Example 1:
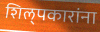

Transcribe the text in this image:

शिल्पकारांना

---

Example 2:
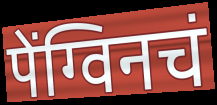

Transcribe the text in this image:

पेंग्विनचं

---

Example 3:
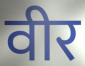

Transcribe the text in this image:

वीर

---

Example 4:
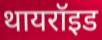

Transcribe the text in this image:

थायरॉइड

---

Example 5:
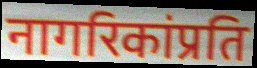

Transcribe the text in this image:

नागरिकांप्रति